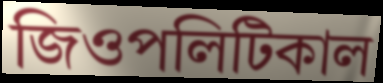
জিওপলিটিকাল